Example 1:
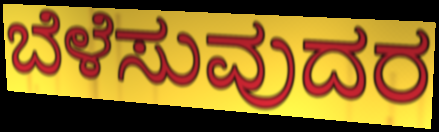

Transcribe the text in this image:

ಬೆಳೆಸುವುದರ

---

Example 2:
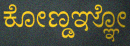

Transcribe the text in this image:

ಕೋಣ್ಡಞ್ಞೋ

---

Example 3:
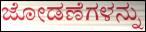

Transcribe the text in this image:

ಜೋಡಣೆಗಳನ್ನು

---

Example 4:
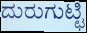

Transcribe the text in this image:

ದುರುಗುಟ್ಟಿ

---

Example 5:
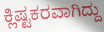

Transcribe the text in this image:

ಕ್ಲಿಷ್ಟಕರವಾಗಿದ್ದು